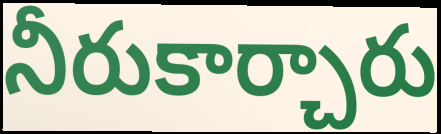
నీరుకార్చారు